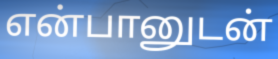
என்பானுடன்